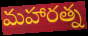
మహారత్న